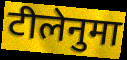
टीलेनुमा